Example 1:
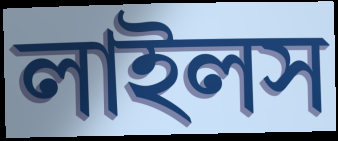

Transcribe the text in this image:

লাইলস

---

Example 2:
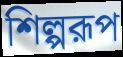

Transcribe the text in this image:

শিল্পরূপ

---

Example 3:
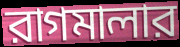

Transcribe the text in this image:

রাগমালার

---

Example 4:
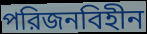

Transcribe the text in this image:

পরিজনবিহীন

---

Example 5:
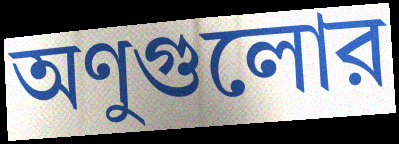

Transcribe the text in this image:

অণুগুলোর